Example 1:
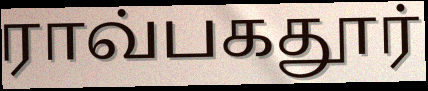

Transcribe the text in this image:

ராவ்பகதூர்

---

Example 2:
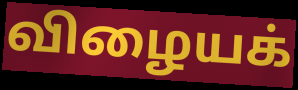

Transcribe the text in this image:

விழையக்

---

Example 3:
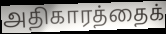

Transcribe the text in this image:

அதிகாரத்தைக்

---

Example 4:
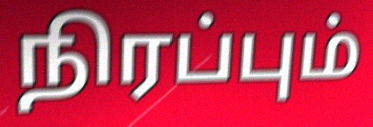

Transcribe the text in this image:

நிரப்பும்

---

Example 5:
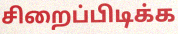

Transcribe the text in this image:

சிறைப்பிடிக்க